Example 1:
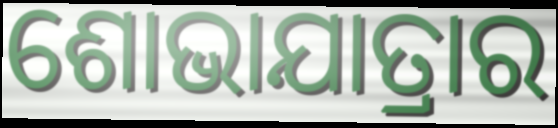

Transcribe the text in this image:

ଶୋଭାଯାତ୍ରାର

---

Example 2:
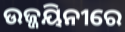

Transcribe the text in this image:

ଉଜ୍ଜୟିନୀରେ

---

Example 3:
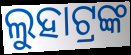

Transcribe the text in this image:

ଲୁହାଟ୍ରଙ୍କ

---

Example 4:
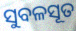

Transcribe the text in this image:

ସୁବଳସୂତ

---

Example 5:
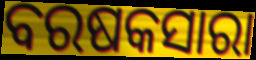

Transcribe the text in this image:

ବରଷକସାରା